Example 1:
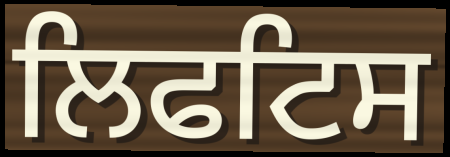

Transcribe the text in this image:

ਲਿਫਟਿਸ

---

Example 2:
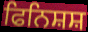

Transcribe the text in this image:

ਫਿਨਿਸ਼ਸ਼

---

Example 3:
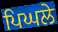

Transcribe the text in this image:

ਪਿਘਲੇ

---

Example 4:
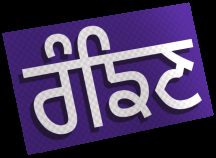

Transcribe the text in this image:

ਰੰਙਿਣ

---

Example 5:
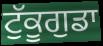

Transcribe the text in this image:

ਟੁੱਕੂਗੁਡਾ